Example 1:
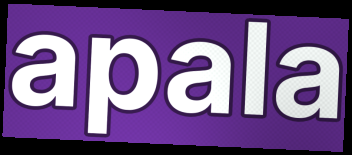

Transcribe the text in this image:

apala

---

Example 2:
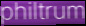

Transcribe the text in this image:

philtrum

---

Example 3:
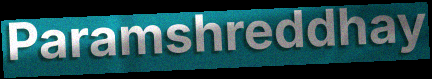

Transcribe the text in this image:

Paramshreddhay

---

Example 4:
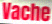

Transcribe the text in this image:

Vache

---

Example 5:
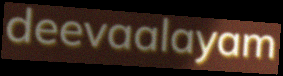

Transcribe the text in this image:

deevaalayam